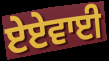
ਏਏਵਾਈ